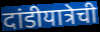
दांडीयात्रेची